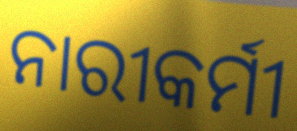
ନାରୀକର୍ମୀ